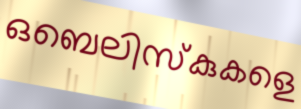
ഒബെലിസ്കുകളെ